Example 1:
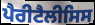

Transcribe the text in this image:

ਪੈਰੀਟੈਲੀਸਿਸ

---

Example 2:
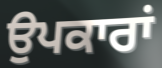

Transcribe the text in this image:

ਉਪਕਾਰਾਂ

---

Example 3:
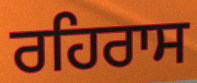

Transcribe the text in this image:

ਰਹਿਰਾਸ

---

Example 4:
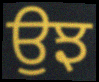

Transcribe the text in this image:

ਉਝ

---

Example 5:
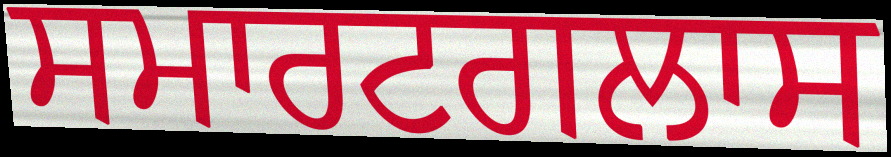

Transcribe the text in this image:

ਸਮਾਰਟਗਲਾਸ